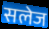
सलेज